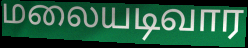
மலையடிவார